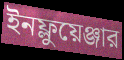
ইনফ্লুয়েঞ্জার